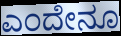
ಎಂದೇನೂ